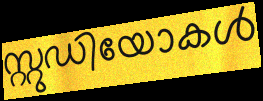
സ്റ്റുഡിയോകൾ